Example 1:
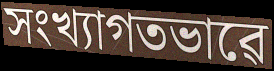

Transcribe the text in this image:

সংখ্যাগতভাৱে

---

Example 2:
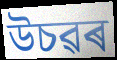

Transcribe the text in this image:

উচৱৰ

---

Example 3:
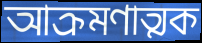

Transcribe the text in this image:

আক্ৰমণাত্মক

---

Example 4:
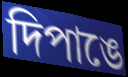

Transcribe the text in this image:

দিপাঙে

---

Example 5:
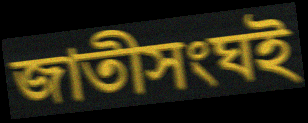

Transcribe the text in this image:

জাতীসংঘই